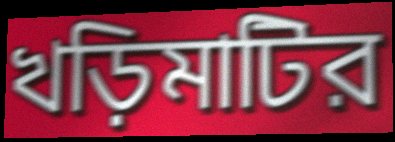
খড়িমাটির